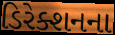
ડિરેક્શનના